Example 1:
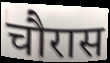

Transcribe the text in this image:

चौरास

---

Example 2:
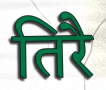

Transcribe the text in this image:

तिरै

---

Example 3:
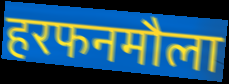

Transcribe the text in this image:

हरफनमौला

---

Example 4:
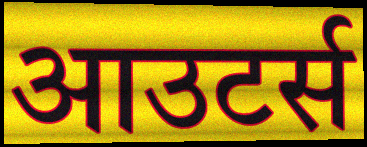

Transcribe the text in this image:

आउटर्स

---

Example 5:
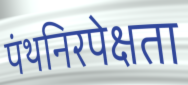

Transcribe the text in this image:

पंथनिरपेक्षता